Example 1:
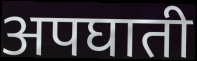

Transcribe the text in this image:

अपघाती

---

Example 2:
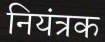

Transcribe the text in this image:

नियंत्रक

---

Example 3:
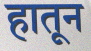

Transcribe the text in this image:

हातून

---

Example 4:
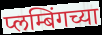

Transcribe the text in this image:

प्लम्बिंगच्या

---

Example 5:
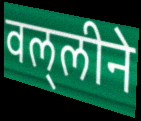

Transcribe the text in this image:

वल्लीने